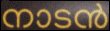
നാടൻ